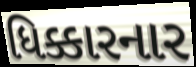
ધિક્કારનાર